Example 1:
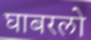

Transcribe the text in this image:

घाबरलो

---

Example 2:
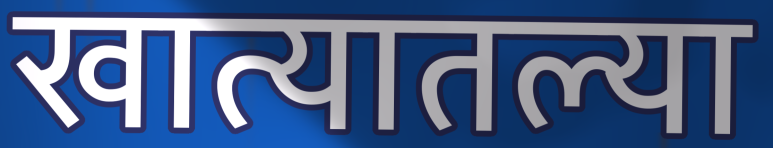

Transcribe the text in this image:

खात्यातल्या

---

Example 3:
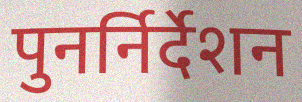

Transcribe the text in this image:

पुनर्निर्देशन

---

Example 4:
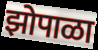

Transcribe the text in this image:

झोपाळा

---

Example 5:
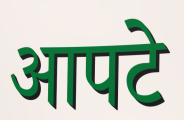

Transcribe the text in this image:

आपटे